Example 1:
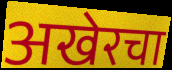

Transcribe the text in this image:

अखेरचा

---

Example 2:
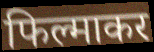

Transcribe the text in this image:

फिल्माकर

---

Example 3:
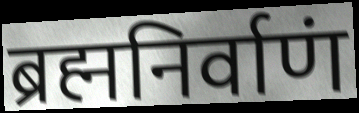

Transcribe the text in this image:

ब्रह्मनिर्वाणं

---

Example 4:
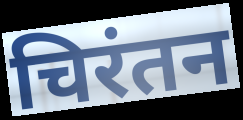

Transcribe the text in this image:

चिरंतन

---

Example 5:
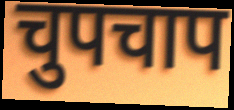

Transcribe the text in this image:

चुपचाप